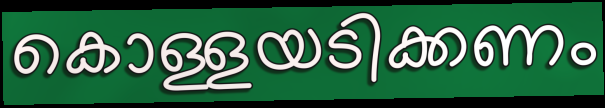
കൊള്ളയടിക്കണം